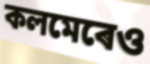
কলমেৰেও